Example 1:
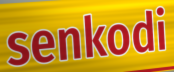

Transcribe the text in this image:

senkodi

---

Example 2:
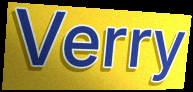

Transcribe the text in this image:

Verry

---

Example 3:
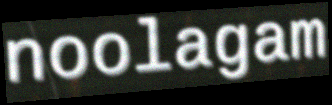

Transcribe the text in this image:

noolagam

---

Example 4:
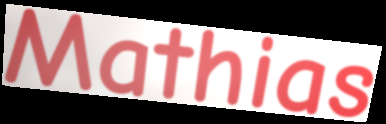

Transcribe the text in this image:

Mathias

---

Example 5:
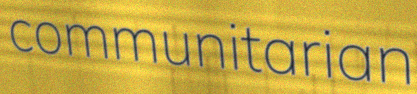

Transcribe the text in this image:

communitarian